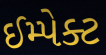
ઈમ્પેક્ટ